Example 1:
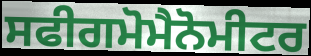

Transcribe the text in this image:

ਸਫੀਗਮੋਮੈਨੋਮੀਟਰ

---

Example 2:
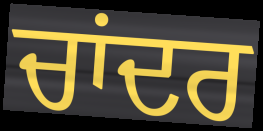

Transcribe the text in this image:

ਚਾਂਦਰ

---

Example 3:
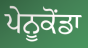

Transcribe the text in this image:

ਪੇਨੂਕੋਂਡਾ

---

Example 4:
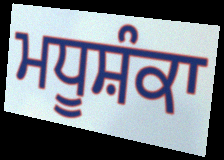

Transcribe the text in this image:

ਮਧੂਸ਼ੰਕਾ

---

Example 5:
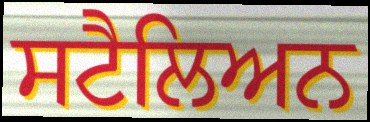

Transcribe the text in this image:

ਸਟੈਲਿਅਨ